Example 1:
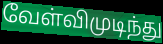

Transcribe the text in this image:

வேள்விமுடிந்து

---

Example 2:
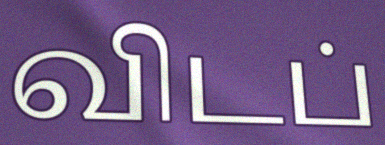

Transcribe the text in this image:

விடப்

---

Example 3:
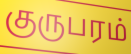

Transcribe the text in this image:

குருபரம்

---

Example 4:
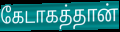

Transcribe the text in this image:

கேடாகத்தான்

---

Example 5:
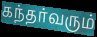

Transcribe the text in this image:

கந்தர்வரும்